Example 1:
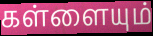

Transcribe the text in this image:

கள்ளையும்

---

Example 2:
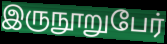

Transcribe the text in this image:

இருநூறுபேர்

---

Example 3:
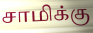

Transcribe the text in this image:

சாமிக்கு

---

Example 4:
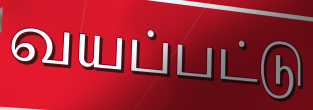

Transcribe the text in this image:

வயப்பட்டு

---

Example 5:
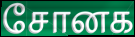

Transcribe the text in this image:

சோனக